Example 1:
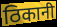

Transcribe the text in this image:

ठिकानी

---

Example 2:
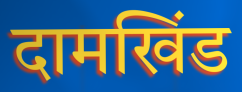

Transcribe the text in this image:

दामखिंड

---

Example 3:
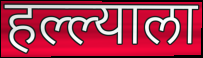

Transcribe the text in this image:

हल्ल्याला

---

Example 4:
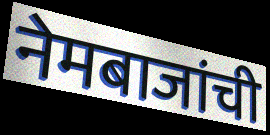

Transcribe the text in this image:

नेमबाजांची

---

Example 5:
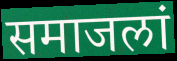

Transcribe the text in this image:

समाजलां